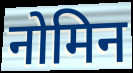
नोमिन